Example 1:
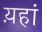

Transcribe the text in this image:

य़हां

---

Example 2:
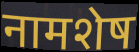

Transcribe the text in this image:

नामशेष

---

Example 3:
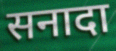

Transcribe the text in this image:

सनादा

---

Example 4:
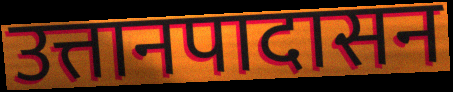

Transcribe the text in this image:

उत्तानपादासन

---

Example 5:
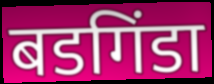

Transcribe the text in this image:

बडगिंडा